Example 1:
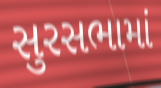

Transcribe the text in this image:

સુરસભામાં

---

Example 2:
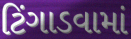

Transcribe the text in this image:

ટિંગાડવામાં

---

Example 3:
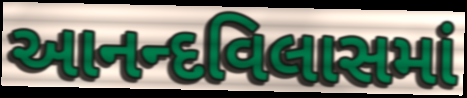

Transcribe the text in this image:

આનન્દવિલાસમાં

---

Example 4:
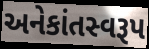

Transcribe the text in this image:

અનેકાંતસ્વરૂપ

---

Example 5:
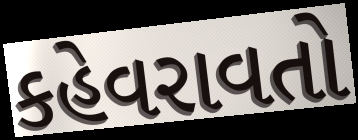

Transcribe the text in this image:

કહેવરાવતો